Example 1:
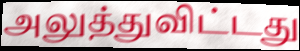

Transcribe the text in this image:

அலுத்துவிட்டது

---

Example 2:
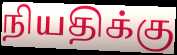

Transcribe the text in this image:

நியதிக்கு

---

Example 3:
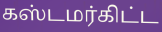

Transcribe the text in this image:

கஸ்டமர்கிட்ட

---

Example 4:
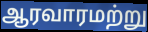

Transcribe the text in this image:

ஆரவாரமற்று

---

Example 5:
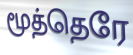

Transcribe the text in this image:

மூத்தெரே